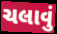
ચલાવું